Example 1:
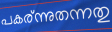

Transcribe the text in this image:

പകര്ന്നുതന്നതു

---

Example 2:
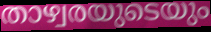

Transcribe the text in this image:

താഴ്വരയുടെയും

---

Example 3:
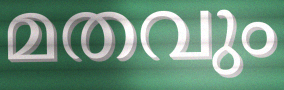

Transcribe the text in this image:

മതവും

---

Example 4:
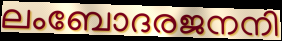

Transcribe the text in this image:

ലംബോദരജനനി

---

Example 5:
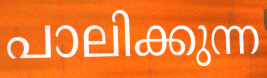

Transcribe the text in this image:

പാലിക്കുന്ന